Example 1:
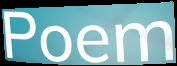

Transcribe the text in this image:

Poem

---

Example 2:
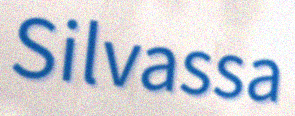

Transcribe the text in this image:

Silvassa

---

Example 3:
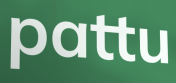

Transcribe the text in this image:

pattu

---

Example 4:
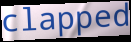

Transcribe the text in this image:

clapped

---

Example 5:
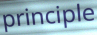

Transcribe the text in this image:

principle